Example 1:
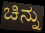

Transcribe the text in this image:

ಚಿನ್ನು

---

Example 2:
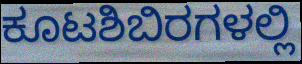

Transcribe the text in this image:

ಕೂಟಶಿಬಿರಗಳಲ್ಲಿ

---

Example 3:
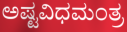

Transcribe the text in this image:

ಅಷ್ಟವಿಧಮಂತ್ರ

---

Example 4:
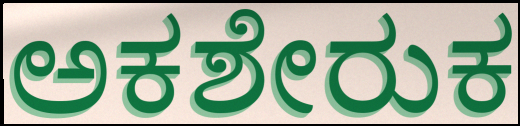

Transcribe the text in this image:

ಅಕಶೇರುಕ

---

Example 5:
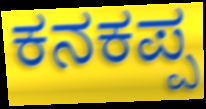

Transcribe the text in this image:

ಕನಕಪ್ಪ